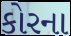
કોરના